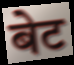
बेट